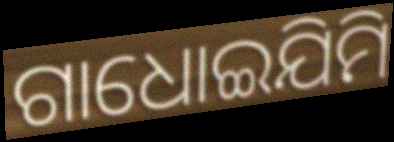
ଗାଧୋଇଯିମି